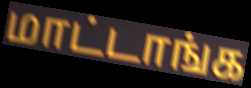
மாட்டாங்க